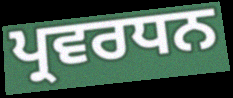
ਪ੍ਰਵਰਧਨ